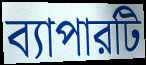
ব্যাপারটি